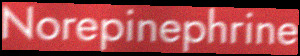
Norepinephrine